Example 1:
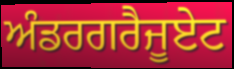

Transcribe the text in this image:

ਅੰਡਰਗਰੈਜੂਏਟ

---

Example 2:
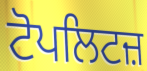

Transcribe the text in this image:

ਟੋਪਲਿਟਜ਼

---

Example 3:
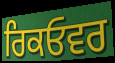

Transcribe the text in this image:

ਰਿਕਓਵਰ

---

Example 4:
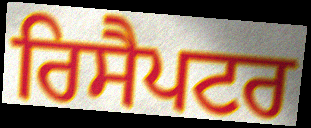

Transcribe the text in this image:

ਰਿਸੈਪਟਰ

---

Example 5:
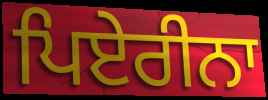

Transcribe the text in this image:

ਪਿਏਰੀਨਾ